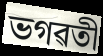
ভগৱতী